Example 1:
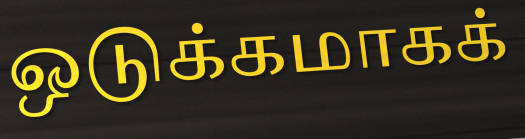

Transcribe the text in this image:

ஒடுக்கமாகக்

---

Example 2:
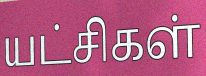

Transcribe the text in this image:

யட்சிகள்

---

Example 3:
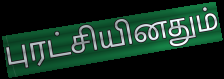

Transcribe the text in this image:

புரட்சியினதும்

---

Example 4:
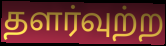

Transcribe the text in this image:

தளர்வுற்ற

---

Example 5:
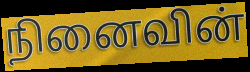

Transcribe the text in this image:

நினைவின்